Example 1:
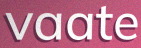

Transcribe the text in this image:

vaate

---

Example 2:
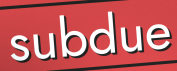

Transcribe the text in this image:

subdue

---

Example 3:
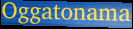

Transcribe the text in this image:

Oggatonama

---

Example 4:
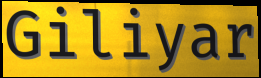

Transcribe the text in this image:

Giliyar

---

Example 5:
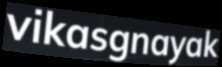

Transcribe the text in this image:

vikasgnayak